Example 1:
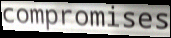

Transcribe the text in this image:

compromises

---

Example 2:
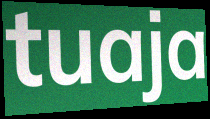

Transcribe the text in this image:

tuaja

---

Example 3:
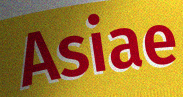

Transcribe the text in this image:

Asiae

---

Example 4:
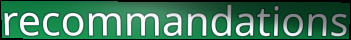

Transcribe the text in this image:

recommandations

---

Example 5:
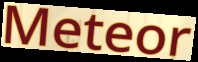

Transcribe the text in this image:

Meteor